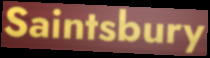
Saintsbury